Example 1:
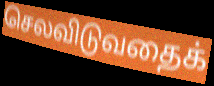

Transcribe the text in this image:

செலவிடுவதைக்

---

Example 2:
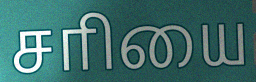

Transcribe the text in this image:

சரியை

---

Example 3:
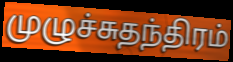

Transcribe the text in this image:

முழுச்சுதந்திரம்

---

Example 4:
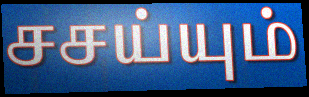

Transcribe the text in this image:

சசய்யும்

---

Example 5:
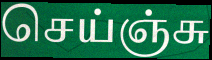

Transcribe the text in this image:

செய்ஞ்சு